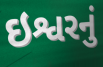
ઇશ્વરનું